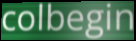
colbegin